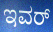
ಇವರ್